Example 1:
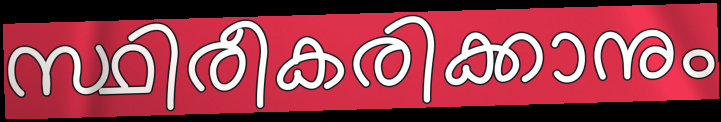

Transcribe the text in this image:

സ്ഥിരീകരിക്കാനും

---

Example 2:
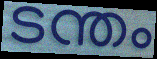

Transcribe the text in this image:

ടന്തം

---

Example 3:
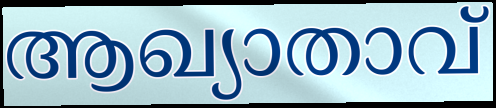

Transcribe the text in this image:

ആഖ്യാതാവ്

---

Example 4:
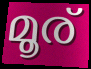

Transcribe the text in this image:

മൂര്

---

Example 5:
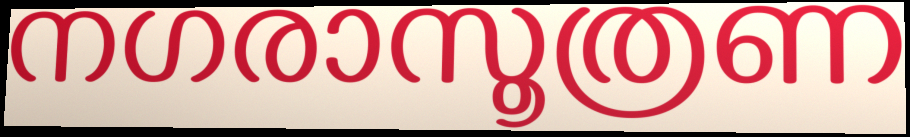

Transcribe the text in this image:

നഗരാസൂത്രണ